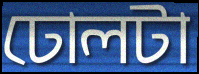
ঢোলটা